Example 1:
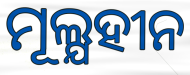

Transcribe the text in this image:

ମୂଲ୍ଯହୀନ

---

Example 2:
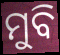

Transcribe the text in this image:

ମୁବି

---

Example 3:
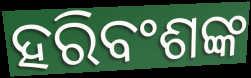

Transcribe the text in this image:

ହରିବଂଶଙ୍କ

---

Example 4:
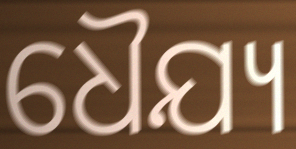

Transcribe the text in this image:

ଧୈଯ୍ଯ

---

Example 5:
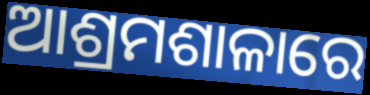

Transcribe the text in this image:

ଆଶ୍ରମଶାଳାରେ